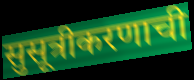
सुसूत्रीकरणाची